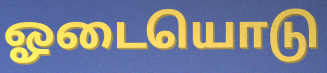
ஓடையொடு